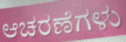
ಆಚರಣೆಗಳು